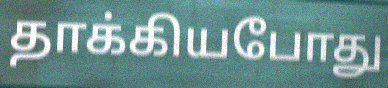
தாக்கியபோது